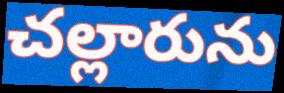
చల్లారును